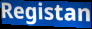
Registan